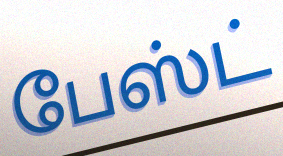
பேஸ்ட்